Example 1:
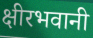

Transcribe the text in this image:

क्षीरभवानी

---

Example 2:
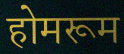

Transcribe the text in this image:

होमरूम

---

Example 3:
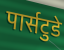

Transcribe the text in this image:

पार्सटुडे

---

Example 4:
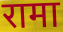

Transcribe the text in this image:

रामा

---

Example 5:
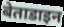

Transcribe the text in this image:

बेताडाइन